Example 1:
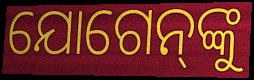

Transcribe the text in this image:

ଯୋଗେନ୍‌ଙ୍କୁ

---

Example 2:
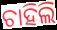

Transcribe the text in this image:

ଚାହିଲି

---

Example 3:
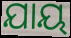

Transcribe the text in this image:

ଯାୟ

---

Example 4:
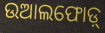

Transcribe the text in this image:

ଉଆଲଫୋଡ଼୍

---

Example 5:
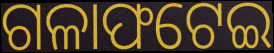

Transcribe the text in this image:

ଗଳାଫଟେଇ